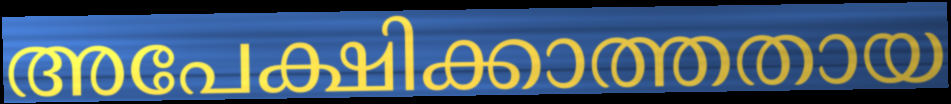
അപേക്ഷിക്കാത്തതായ